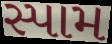
સ્પામ